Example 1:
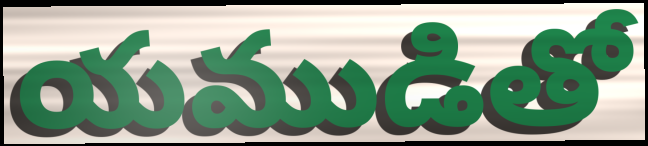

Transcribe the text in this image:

యముడితో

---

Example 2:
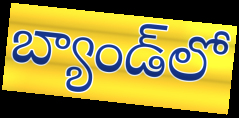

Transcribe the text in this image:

బ్యాండ్‌లో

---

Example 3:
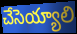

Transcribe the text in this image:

చేసెయ్యాలి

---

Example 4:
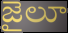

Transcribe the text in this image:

జైలూ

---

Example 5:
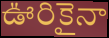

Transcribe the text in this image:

ఊరికైనా